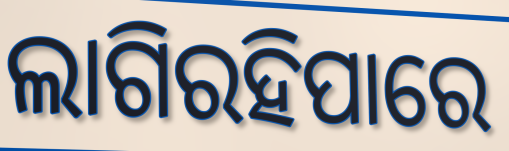
ଲାଗିରହିପାରେ